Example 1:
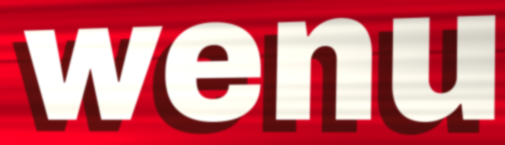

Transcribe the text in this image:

wenu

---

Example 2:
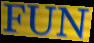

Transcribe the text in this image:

FUN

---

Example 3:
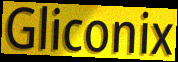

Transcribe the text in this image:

Gliconix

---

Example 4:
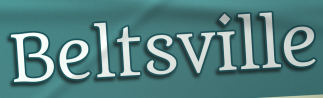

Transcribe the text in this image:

Beltsville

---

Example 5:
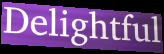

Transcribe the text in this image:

Delightful